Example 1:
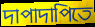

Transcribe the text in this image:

দাপাদাপিতে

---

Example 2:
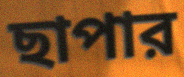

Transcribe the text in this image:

ছাপার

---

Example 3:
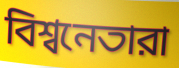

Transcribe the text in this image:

বিশ্বনেতারা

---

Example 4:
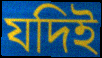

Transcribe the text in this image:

যদিই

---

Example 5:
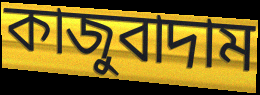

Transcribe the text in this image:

কাজুবাদাম